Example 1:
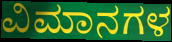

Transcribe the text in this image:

ವಿಮಾನಗಳ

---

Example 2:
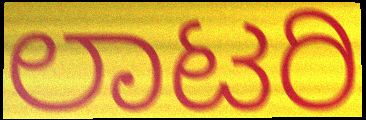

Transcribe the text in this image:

ಲಾಟರಿ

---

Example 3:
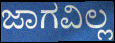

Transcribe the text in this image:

ಜಾಗವಿಲ್ಲ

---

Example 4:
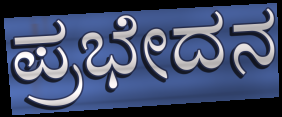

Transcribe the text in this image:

ಪ್ರಭೇದನ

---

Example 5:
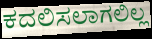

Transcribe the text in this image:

ಕದಲಿಸಲಾಗಲಿಲ್ಲ